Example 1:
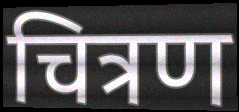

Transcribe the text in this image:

चित्रण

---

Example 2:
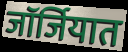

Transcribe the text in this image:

जॉर्जियात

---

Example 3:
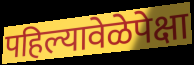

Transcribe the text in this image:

पहिल्यावेळेपेक्षा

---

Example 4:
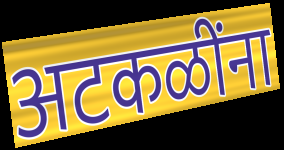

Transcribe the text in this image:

अटकळींना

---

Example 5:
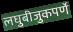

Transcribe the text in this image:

लघुबीजुकपर्णे